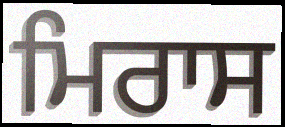
ਮਿਰਾਸ